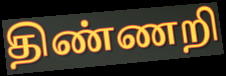
திண்ணறி